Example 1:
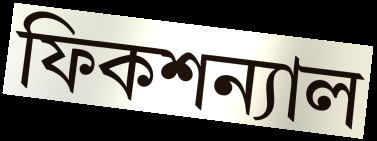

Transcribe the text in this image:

ফিকশন্যাল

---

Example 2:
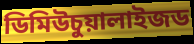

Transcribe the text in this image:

ডিমিউচুয়ালাইজড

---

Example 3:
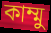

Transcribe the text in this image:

কাম্মু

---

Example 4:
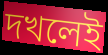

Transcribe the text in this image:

দখলেই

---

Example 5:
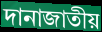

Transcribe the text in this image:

দানাজাতীয়